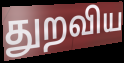
துறவிய